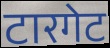
टारगेट